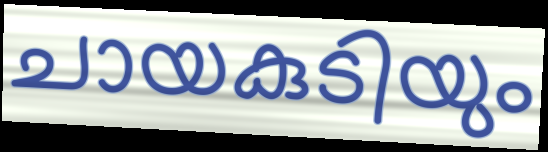
ചായകുടിയും